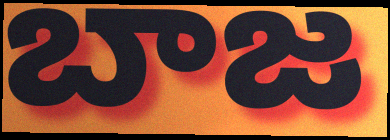
బాజ